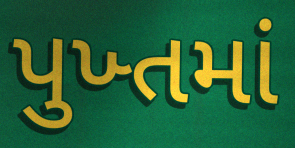
પુખ્તમાં